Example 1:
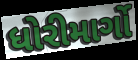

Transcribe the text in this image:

ધોરીમાર્ગો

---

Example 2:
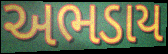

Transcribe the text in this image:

અભડાય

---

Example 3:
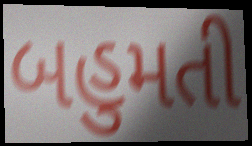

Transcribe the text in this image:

બહુમતી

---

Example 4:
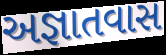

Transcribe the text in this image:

અજ્ઞાતવાસ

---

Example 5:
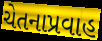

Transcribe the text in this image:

ચેતનાપ્રવાહ